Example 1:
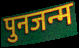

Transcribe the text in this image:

पुनजन्म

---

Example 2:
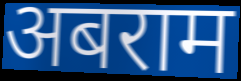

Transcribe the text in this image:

अबराम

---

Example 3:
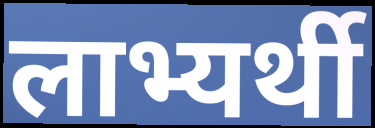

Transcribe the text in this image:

लाभ्यर्थी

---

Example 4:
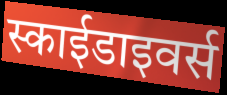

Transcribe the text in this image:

स्काईडाइवर्स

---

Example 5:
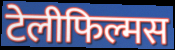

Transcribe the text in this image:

टेलीफिल्मस